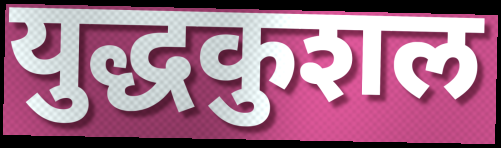
युद्धकुशल